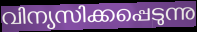
വിന്യസിക്കപ്പെടുന്നു